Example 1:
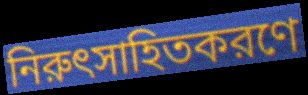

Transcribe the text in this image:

নিরুৎসাহিতকরণে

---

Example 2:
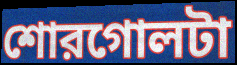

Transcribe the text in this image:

শোরগোলটা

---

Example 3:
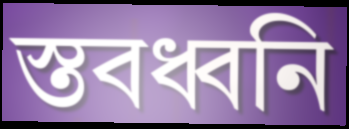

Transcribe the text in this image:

স্তবধ্বনি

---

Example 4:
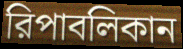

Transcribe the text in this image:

রিপাবলিকান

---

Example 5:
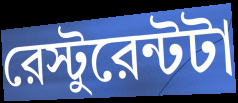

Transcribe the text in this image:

রেস্টুরেন্টটা